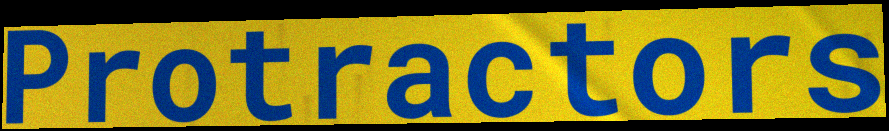
Protractors